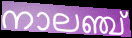
നാലഞ്ച്